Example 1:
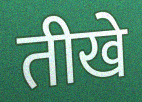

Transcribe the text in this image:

तीखे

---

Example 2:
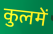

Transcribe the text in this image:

कुलमें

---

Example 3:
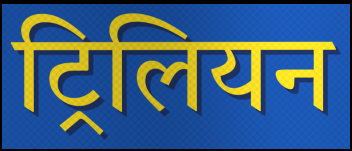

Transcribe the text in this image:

ट्रिलियन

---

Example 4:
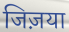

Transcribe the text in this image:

जिज़या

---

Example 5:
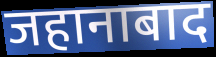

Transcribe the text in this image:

जहानाबाद